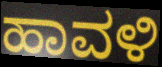
ಹಾವಳಿ